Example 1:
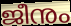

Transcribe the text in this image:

ജീനും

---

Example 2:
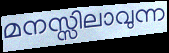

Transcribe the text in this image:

മനസ്സിലാവുന്ന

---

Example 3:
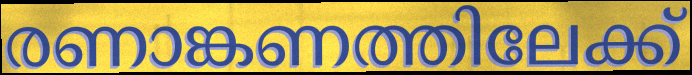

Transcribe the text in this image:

രണാങ്കണത്തിലേക്ക്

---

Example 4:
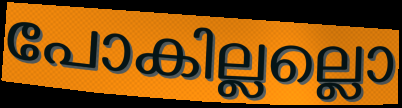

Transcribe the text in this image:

പോകില്ലല്ലൊ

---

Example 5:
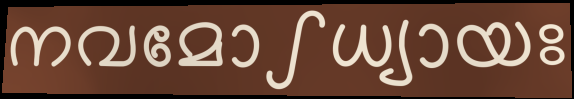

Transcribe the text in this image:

നവമോഽധ്യായഃ